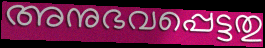
അനുഭവപ്പെട്ടതു